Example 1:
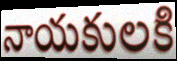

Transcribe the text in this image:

నాయకులకి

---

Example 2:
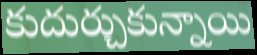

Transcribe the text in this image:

కుదుర్చుకున్నాయి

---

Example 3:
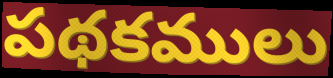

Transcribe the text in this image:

పథకములు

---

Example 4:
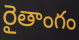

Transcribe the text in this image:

రైతాంగం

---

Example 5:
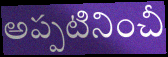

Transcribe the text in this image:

అప్పటినించీ